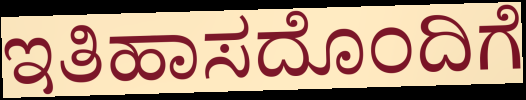
ಇತಿಹಾಸದೊಂದಿಗೆ